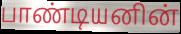
பாண்டியனின்